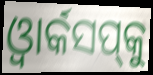
ଓ୍ୱାର୍କସପ୍‌କୁ